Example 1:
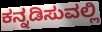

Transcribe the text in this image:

ಕನ್ನಡಿಸುವಲ್ಲಿ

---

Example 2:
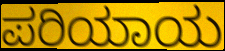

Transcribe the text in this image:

ಪರಿಯಾಯ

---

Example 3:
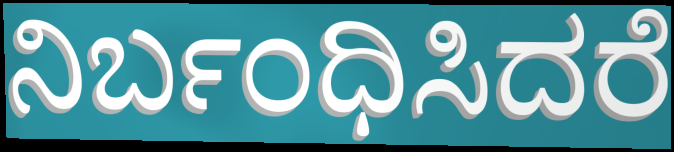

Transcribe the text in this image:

ನಿರ್ಬಂಧಿಸಿದರೆ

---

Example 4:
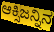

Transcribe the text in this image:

ಆಕ್ಸಿಜನ್ನಿನ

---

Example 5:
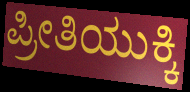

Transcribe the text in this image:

ಪ್ರೀತಿಯುಕ್ಕಿ